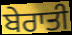
ਬੇਰਾਤੀ